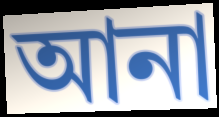
আনা